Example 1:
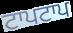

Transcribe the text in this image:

ਟਾਪਟਾਪ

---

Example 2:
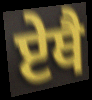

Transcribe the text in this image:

ਏਥੈ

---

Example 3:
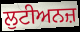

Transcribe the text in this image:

ਲੁਟੀਅਨਜ਼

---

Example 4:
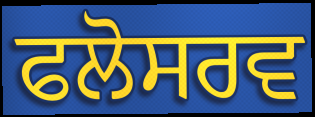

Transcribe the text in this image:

ਫਲੋਸਰਵ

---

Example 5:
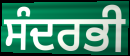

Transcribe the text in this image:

ਸੰਦਰਭੀ